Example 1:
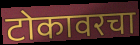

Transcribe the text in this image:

टोकावरचा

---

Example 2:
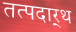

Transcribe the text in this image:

तत्पदार्थ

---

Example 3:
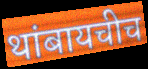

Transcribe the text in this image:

थांबायचीच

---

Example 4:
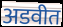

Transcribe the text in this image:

अडवीत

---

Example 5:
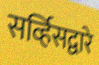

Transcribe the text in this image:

सर्व्हिसद्वारे